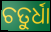
ଚତୁର୍ଧା